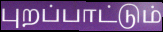
புறப்பாட்டும்